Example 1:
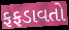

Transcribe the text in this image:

ફફડાવતો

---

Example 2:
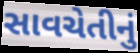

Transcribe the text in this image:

સાવચેતીનું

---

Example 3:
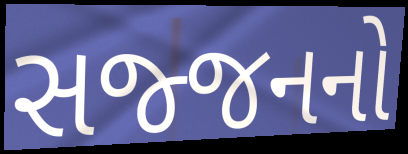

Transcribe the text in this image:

સજ્જનનો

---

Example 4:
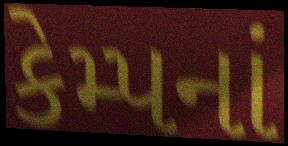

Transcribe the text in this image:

કેમ્પનાં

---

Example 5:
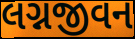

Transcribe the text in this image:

લગ્નજીવન